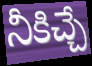
నీకిచ్చే